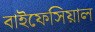
বাইফেসিয়াল